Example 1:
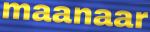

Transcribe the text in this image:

maanaar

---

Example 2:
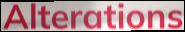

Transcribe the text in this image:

Alterations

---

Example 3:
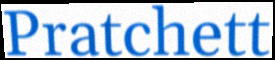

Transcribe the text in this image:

Pratchett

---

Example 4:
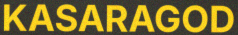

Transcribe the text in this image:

KASARAGOD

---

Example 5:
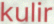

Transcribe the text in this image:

kulir